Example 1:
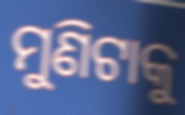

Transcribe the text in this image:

ମୁଣିଟାକୁ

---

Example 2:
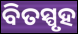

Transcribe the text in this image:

ବିତସ୍ପୃହ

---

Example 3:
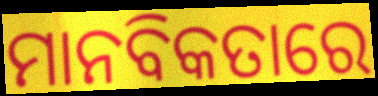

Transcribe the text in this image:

ମାନବିକତାରେ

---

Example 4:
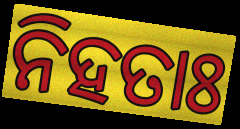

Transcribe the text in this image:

ନିହତାଃ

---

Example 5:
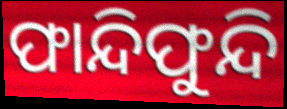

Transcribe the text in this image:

ଫାନ୍ଦିଫୁନ୍ଦି